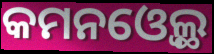
କମନଓ୍ବେଲ୍ଥ